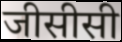
जीसीसी